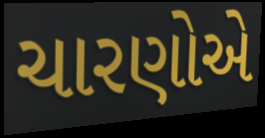
ચારણોએ